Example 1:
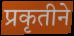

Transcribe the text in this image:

प्रकृतीने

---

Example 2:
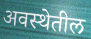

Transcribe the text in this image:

अवस्थेतील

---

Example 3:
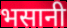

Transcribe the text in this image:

भसानी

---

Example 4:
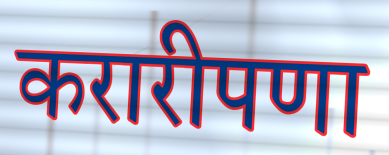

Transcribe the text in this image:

करारीपणा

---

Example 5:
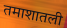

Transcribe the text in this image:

तमाशातली